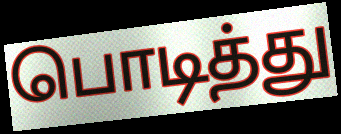
பொடித்து